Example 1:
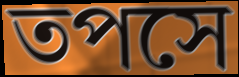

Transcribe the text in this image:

তপসে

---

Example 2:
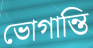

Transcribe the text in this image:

ভোগান্তি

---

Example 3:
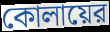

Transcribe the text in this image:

কোলায়ের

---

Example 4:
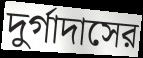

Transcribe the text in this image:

দুর্গাদাসের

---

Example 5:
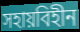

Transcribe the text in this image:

সহায়বিহীন